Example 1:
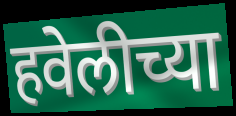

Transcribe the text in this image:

हवेलीच्या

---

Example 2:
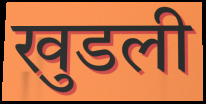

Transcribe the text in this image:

खुडली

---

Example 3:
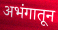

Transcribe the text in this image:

अभंगातून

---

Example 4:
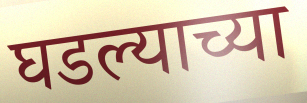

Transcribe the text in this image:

घडल्याच्या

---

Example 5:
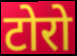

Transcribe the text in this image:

टोरो